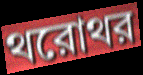
থরোথর